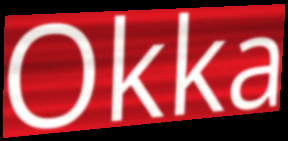
Okka